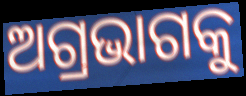
ଅଗ୍ରଭାଗକୁ